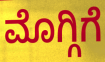
ಮೊಗ್ಗಿಗೆ